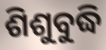
ଶିଶୁବୁଦ୍ଧି